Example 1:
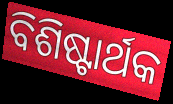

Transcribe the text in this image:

ବିଶିଷ୍ଟାର୍ଥକ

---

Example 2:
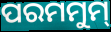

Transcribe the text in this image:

ପରମମୁମ୍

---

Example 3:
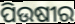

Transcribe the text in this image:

ପିଉଷୀର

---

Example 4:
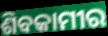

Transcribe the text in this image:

ଶିବକାମୀର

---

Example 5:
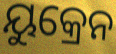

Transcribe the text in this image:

ୟୁକ୍ରେନ